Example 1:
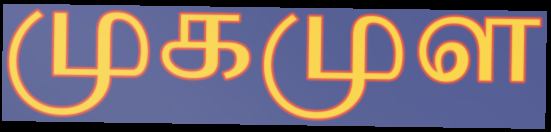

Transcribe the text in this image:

முகமுள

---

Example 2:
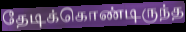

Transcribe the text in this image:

தேடிக்கொண்டிருந்த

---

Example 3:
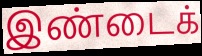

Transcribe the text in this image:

இண்டைக்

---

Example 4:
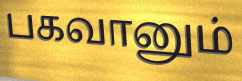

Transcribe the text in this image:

பகவானும்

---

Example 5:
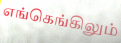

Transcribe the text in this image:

எங்கெங்கிலும்